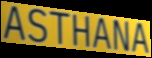
ASTHANA